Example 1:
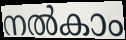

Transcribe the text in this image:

നൽകാം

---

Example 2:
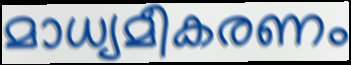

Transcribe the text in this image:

മാധ്യമീകരണം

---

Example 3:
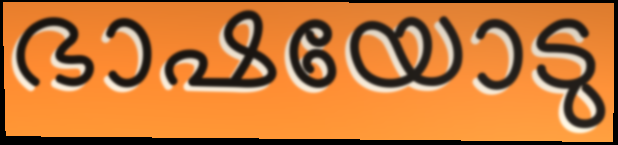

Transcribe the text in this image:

ഭാഷയോടു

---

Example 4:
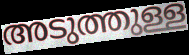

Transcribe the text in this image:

അടുത്തുള്ള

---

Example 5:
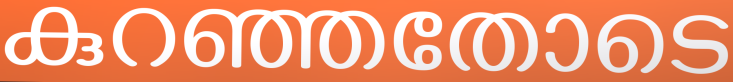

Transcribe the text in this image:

കുറഞ്ഞതോടെ